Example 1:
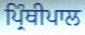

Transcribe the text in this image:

ਪ੍ਰਿੰਥੀਪਾਲ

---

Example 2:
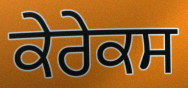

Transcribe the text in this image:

ਕੇਰੇਕਸ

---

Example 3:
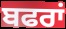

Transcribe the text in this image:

ਬਫਰਾਂ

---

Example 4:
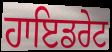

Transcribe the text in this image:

ਹਾਇਡਰੇਟ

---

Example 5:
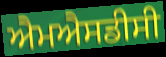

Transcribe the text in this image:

ਐਮਐਸਡੀਸੀ